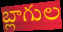
బ్లాగుల